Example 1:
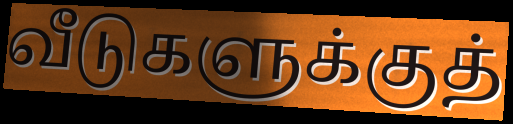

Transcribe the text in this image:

வீடுகளுக்குத்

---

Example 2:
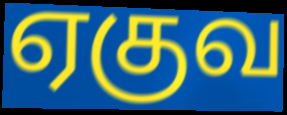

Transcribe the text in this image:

ஏகுவ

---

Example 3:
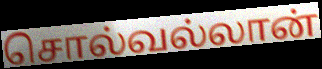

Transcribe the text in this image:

சொல்வல்லான்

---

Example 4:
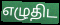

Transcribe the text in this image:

எழுதிட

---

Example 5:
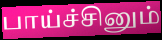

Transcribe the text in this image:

பாய்ச்சினும்